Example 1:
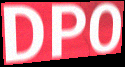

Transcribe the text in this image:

DPO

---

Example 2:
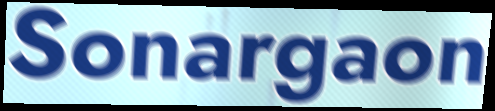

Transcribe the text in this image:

Sonargaon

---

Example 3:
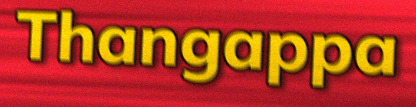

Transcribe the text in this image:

Thangappa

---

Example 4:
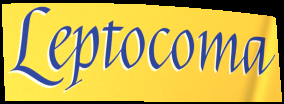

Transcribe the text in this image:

Leptocoma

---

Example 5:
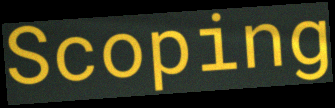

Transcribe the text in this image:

Scoping